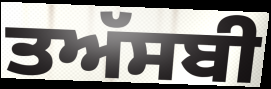
ਤਅੱਸਬੀ